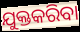
ଯୁକ୍ତକରିବା